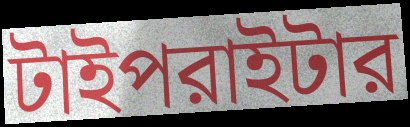
টাইপরাইটার